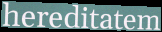
hereditatem